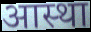
आस्था